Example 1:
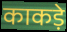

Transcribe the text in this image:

काकड़े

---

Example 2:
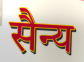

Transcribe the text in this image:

सैन्‍य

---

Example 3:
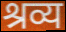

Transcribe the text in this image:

श्रव्य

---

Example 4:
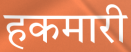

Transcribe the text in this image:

हकमारी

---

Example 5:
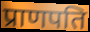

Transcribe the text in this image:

प्राणपति